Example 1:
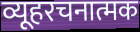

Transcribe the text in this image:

व्यूहरचनात्मक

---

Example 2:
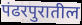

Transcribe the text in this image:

पंढरपुरातील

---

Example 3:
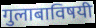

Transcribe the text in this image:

गुलाबाविषयी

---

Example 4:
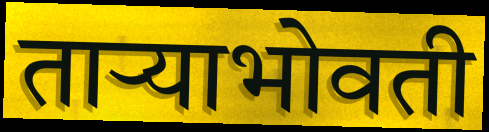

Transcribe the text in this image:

ताऱ्याभोवती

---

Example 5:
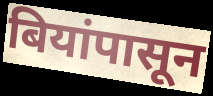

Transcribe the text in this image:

बियांपासून